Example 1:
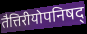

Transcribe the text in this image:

तैत्तिरीयोपनिषद्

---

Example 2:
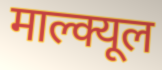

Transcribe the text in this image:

माल्क्यूल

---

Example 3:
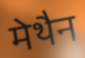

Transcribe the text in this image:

मेथैन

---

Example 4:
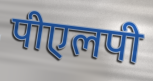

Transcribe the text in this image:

पीएलपी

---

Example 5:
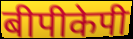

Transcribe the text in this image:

बीपीकेपी